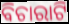
ବିଚାରାଟି